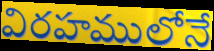
విరహములోనే